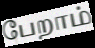
பேறாம்